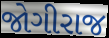
જોગીરાજ